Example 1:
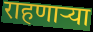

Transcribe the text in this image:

राहणाऱ्या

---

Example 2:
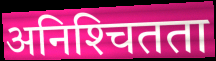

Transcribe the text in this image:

अनिश्‍चितता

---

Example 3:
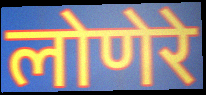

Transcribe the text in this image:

लोणेरे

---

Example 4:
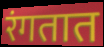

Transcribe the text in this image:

रंगतात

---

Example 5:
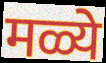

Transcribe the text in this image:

मळ्ये